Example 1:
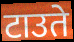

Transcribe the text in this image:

टाउते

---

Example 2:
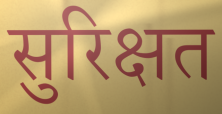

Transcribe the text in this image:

सुरिक्षत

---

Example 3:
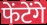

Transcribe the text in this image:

फेंटेंगे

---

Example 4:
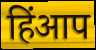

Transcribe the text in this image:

हिंआप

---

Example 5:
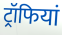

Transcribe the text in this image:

ट्रॉफियां